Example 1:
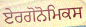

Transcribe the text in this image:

ਏਰਗੋਨੋਮਿਕਸ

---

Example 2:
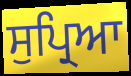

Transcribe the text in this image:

ਸੁਪ੍ਰਿਆ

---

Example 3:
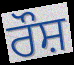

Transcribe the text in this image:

ਰੌਸ਼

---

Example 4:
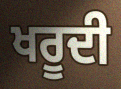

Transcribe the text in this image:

ਖਰੂਦੀ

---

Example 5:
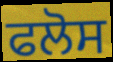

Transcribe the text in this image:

ਫਲੋਸ